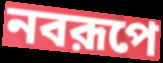
নবরূপে